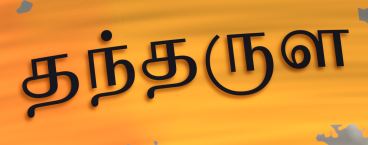
தந்தருள